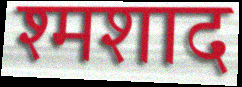
श्मशाद